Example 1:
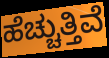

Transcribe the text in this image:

ಹೆಚ್ಚುತ್ತಿವೆ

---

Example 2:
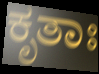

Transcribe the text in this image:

ಕೃತಾಃ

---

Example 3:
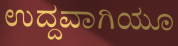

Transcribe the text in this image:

ಉದ್ದವಾಗಿಯೂ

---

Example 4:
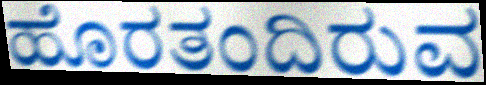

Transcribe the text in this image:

ಹೊರತಂದಿರುವ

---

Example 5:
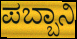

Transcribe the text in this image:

ಪಬ್ಬಾನಿ